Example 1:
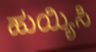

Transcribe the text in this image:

ಹುಯ್ಯಿಸಿ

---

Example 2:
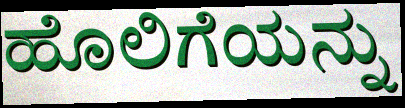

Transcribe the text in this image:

ಹೊಲಿಗೆಯನ್ನು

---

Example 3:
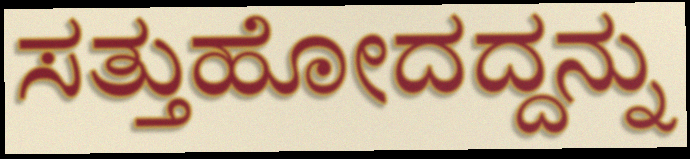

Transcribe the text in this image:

ಸತ್ತುಹೋದದ್ದನ್ನು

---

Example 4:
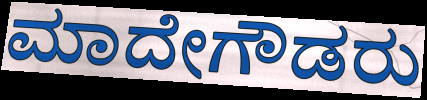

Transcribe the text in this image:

ಮಾದೇಗೌಡರು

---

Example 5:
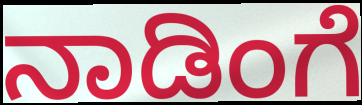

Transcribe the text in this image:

ನಾಡಿಂಗೆ